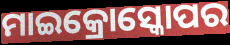
ମାଇକ୍ରୋସ୍କୋପର